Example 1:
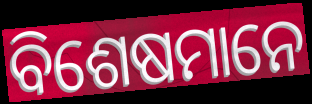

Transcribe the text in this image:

ବିଶେଷମାନେ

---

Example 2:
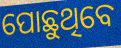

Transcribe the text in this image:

ପୋଛୁଥିବେ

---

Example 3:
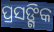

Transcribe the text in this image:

ପ୍ରସଙ୍ଗିକ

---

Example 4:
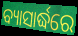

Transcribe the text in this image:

ବ୍ୟାସାର୍ଦ୍ଧରେ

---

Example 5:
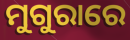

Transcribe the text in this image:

ମୁଗୁରାରେ